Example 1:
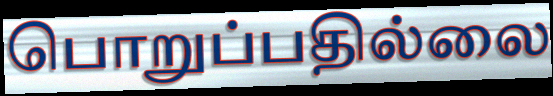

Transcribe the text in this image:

பொறுப்பதில்லை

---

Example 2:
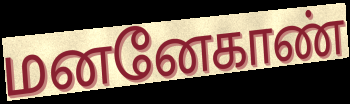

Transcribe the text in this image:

மனனேகாண்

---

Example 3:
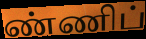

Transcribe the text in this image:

ண்ணிப்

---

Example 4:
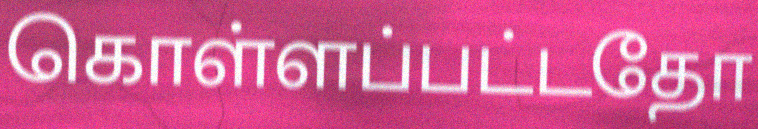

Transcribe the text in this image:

கொள்ளப்பட்டதோ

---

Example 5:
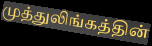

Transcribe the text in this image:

முத்துலிங்கத்தின்